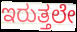
ಇರುತ್ತಲೇ